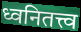
ध्वनितत्त्व